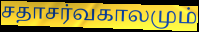
சதாசர்வகாலமும்